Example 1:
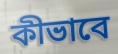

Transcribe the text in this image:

কীভাবে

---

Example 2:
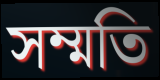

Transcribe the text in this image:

সম্মতি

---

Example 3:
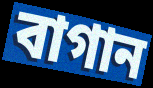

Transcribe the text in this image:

বাগান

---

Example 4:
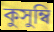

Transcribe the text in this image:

কুসুম্বি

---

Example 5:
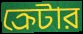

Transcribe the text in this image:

ক্রেটার